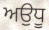
ਅਉਧੂ